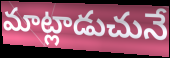
మాట్లాడుచునే